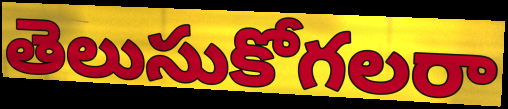
తెలుసుకోగలరా